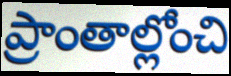
ప్రాంతాల్లోంచి